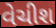
વેચીશ